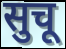
सुचू